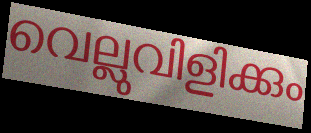
വെല്ലുവിളിക്കും